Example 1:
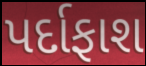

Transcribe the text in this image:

પર્દાફાશ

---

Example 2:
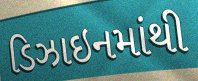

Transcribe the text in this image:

ડિઝાઇનમાંથી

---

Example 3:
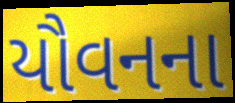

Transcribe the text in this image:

યૌવનના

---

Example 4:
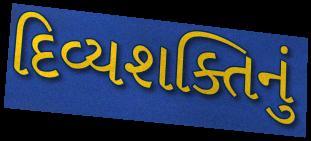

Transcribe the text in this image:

દિવ્યશક્તિનું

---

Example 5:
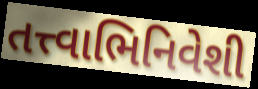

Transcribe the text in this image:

તત્ત્વાભિનિવેશી